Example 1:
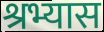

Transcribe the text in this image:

श्रभ्यास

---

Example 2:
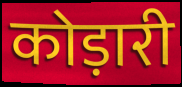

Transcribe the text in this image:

कोड़ारी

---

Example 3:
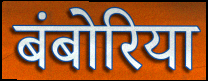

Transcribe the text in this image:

बंबोरिया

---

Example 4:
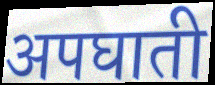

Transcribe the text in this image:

अपघाती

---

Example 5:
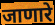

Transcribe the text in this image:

जाणारे